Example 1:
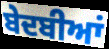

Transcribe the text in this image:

ਬੇਦਬੀਆਂ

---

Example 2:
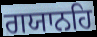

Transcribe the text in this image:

ਗਯਾਨਹਿ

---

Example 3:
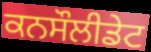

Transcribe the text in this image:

ਕਨਸੌਲੀਡੇਟ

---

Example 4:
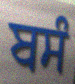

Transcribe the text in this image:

ਬਸੰ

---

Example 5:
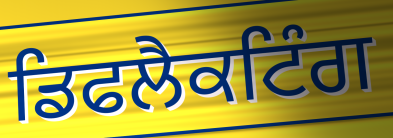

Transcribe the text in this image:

ਡਿਫਲੈਕਟਿੰਗ